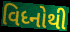
વિધ્નોથી